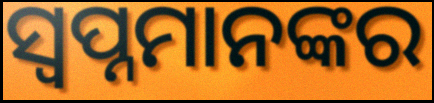
ସ୍ବପ୍ନମାନଙ୍କର